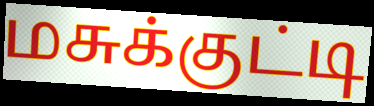
மசுக்குட்டி